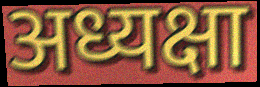
अध्यक्षा